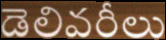
డెలివరీలు